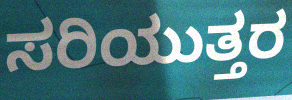
ಸರಿಯುತ್ತರ